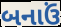
બનાઉં